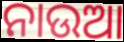
ନାଉଆ